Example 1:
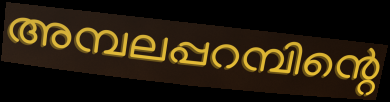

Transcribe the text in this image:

അമ്പലപ്പറമ്പിന്റെ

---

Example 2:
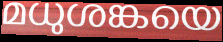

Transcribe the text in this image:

മധുശങ്കയെ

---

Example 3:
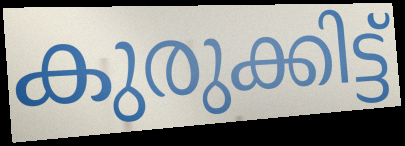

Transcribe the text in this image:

കുരുക്കിട്ട്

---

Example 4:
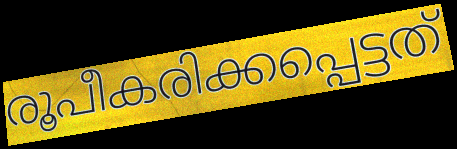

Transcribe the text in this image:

രൂപീകരിക്കപ്പെട്ടത്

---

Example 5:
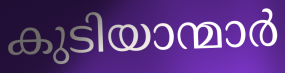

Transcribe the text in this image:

കുടിയാന്മാർ